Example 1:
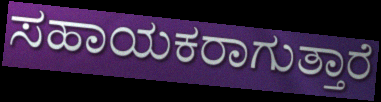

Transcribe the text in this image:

ಸಹಾಯಕರಾಗುತ್ತಾರೆ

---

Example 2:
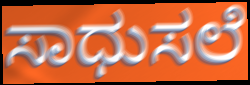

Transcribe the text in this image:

ಸಾಧುಸಲೆ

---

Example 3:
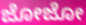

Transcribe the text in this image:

ಜೋಜೋ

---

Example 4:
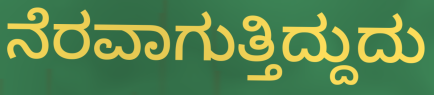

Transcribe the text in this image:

ನೆರವಾಗುತ್ತಿದ್ದುದು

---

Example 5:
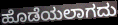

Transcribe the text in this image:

ಹೊಡೆಯಲಾಗದು